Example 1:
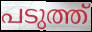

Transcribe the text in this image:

പടുത്ത്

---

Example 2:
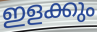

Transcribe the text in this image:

ഇളക്കും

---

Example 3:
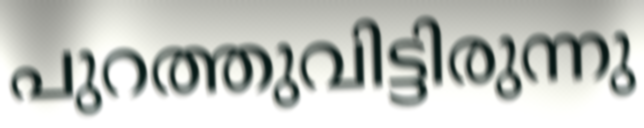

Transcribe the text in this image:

പുറത്തുവിട്ടിരുന്നു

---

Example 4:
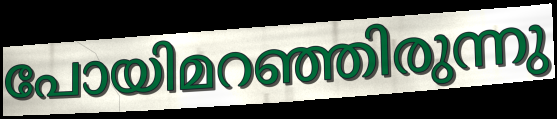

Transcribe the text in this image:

പോയിമറഞ്ഞിരുന്നു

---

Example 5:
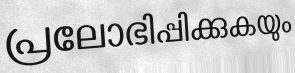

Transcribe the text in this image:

പ്രലോഭിപ്പിക്കുകയും